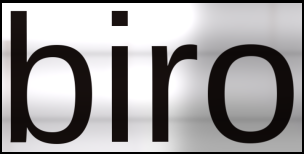
biro